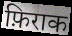
फ़िराक